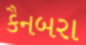
કૈનબરા